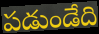
పడుండేది